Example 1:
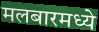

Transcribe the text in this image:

मलबारमध्ये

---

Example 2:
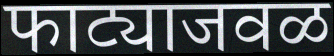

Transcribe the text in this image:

फाट्याजवळ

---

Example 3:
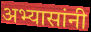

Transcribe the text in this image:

अभ्यासांनी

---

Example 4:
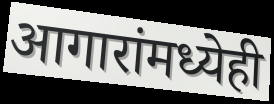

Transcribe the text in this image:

आगारांमध्येही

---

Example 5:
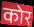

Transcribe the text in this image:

कोर